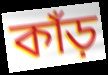
কাঁড়